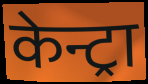
केन्ट्रा